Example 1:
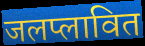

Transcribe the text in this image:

जलप्लावित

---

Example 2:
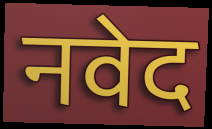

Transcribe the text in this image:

नवेद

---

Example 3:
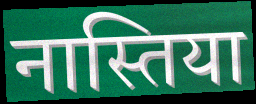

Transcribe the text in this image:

नास्तिया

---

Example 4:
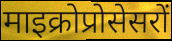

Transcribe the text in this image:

माइक्रोप्रोसेसरों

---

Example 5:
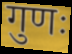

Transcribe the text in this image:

गुणः